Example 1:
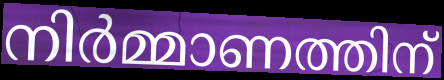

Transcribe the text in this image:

നിർമ്മാണത്തിന്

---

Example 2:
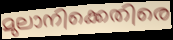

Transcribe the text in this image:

മുലാനിക്കെതിരെ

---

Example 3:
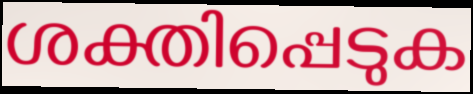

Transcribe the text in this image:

ശക്തിപ്പെടുക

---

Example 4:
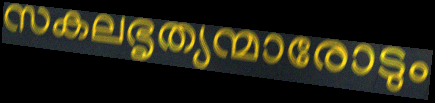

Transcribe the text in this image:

സകലഭൃത്യന്മാരോടും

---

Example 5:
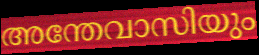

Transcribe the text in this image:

അന്തേവാസിയും